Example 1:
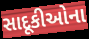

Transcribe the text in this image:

સાદૂકીઓના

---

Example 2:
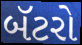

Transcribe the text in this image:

બૅટરો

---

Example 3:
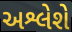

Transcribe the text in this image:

અશ્લેશે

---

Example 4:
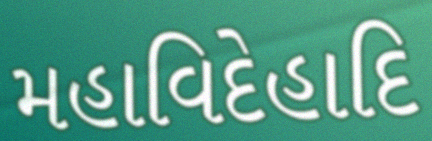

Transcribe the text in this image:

મહાવિદેહાદિ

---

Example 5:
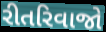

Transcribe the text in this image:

રીતરિવાજો